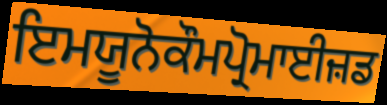
ਇਮਯੂਨੋਕੌਮਪ੍ਰੋਮਾਈਜ਼ਡ